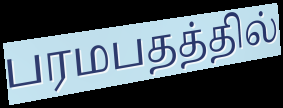
பரமபதத்தில்